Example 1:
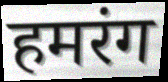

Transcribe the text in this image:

हमरंग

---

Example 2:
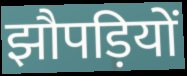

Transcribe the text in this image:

झौपड़ियों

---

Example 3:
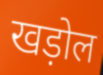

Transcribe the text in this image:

खड़ोल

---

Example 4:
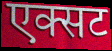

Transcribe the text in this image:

एक्सट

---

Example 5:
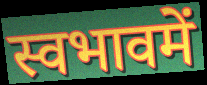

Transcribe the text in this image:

स्वभावमें